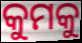
କୁମକୁ